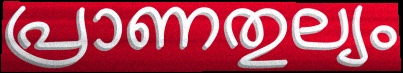
പ്രാണതുല്യം